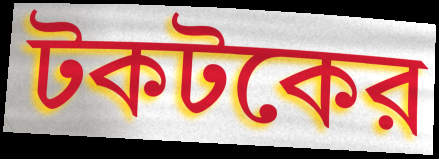
টকটকের